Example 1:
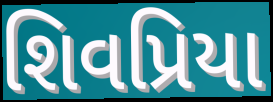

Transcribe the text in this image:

શિવપ્રિયા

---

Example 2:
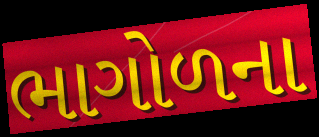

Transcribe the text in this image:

ભાગોળના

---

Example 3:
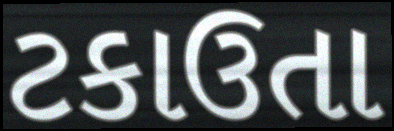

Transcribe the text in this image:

ટકાઉતા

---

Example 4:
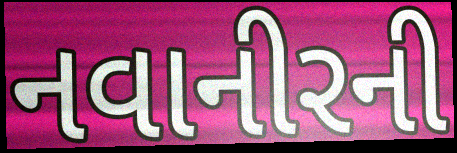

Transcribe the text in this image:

નવાનીરની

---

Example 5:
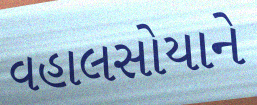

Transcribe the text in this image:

વહાલસોયાને